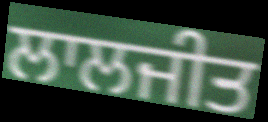
ਲਾਲਜੀਤ